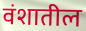
वंशातील